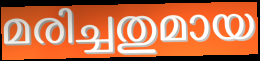
മരിച്ചതുമായ